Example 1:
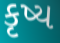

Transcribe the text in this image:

કૃષ્ય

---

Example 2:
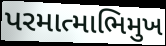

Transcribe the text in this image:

પરમાત્માભિમુખ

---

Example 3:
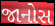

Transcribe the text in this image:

જાનોસ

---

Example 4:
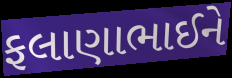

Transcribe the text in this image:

ફલાણાભાઈને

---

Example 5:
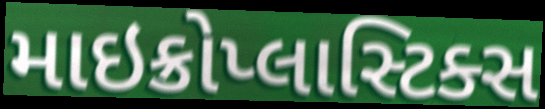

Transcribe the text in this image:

માઇક્રોપ્લાસ્ટિક્સ